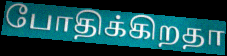
போதிக்கிறதா